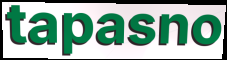
tapasno